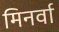
मिनर्वा